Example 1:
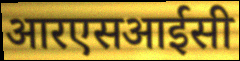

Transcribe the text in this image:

आरएसआईसी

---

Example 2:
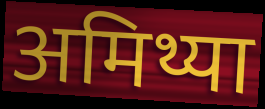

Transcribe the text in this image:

अमिथ्या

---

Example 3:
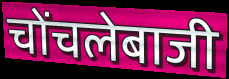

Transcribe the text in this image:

चोंचलेबाजी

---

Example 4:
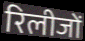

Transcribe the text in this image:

रिलीजों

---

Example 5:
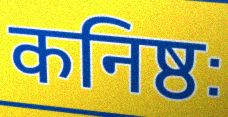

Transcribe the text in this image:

कनिष्ठः